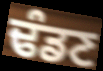
ਢੰਡਣ